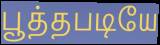
பூத்தபடியே